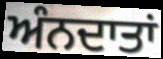
ਅੰਨਦਾਤਾਂ